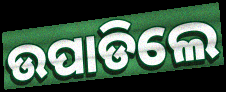
ଉପାଡିଲେ